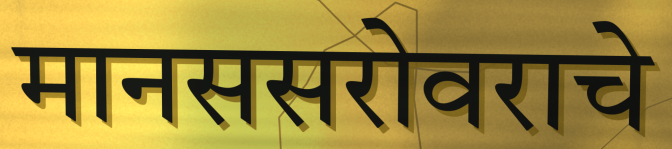
मानससरोवराचे